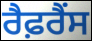
ਰੈਫ਼ਰੈਂਸ